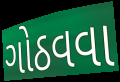
ગોઠવવા